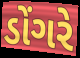
ડોંગરે